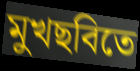
মুখছবিতে